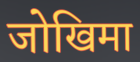
जोखिमा